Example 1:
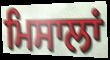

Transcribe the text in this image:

ਮਿਸਾਲਾਂ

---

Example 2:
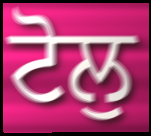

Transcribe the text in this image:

ਟੋਲੁ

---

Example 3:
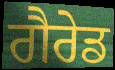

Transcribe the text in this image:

ਗੈਰੇਡ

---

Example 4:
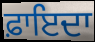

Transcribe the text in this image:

ਫ਼ਾਇਦਾ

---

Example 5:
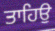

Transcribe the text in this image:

ਤਾਹਿਉ